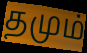
தமும்